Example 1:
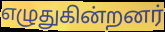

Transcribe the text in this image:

எழுதுகின்றனர்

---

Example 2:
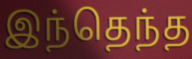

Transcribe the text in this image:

இந்தெந்த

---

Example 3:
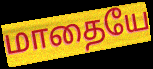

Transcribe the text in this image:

மாதையே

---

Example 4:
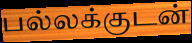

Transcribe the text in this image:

பல்லக்குடன்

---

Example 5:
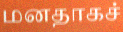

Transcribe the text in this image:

மனதாகச்